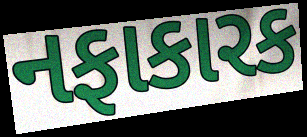
નફાકારક